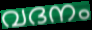
വദനം